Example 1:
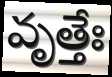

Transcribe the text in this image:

వృత్తేః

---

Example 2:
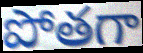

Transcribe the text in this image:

పోతగా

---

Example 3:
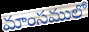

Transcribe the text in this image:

మాంసములో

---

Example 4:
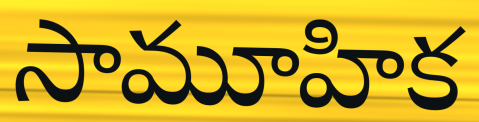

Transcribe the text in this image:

సామూహిక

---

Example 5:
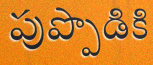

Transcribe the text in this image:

పుప్పొడికి